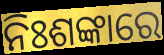
ନିଃଶଙ୍କାରେ